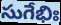
సుగేభిః